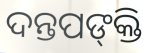
ଦନ୍ତପଙ୍‍କ୍ତି